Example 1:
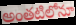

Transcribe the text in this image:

అంతటిలోనూ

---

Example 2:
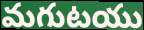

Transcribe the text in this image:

మగుటయు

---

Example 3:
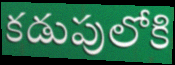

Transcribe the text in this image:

కడుపులోకి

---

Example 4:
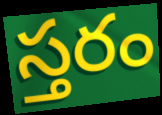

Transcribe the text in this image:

స్తరం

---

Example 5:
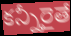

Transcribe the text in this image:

కన్నీరైతే